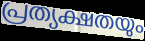
പ്രത്യക്ഷതയും